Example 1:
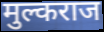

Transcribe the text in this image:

मुल्कराज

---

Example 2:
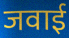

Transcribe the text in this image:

जवाई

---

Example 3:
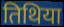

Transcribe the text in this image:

तिथिया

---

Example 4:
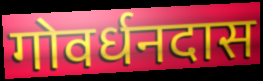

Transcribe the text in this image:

गोवर्धनदास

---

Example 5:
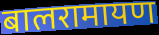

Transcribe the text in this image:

बालरामायण